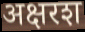
अक्षरश